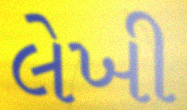
લેખી